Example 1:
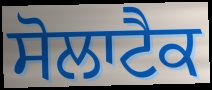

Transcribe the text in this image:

ਸੋਲਾਟੈਕ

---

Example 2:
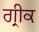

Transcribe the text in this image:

ਗ੍ਰੀਕ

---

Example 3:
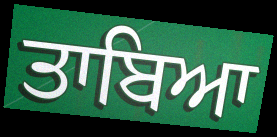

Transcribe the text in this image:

ਤਾਬਿਆ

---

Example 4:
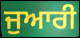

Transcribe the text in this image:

ਜੁਆਰੀ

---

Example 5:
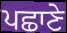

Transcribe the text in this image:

ਪਛਾਣੇ